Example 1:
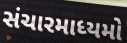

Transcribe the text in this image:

સંચારમાધ્યમો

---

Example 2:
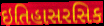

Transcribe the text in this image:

ઇતિહાસરસિક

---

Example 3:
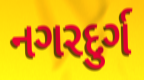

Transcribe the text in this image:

નગરદુર્ગ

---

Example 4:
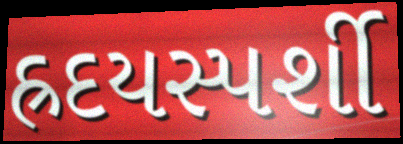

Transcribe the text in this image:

હ્રદયસ્પર્શી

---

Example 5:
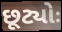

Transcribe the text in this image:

છૂટ્યોઃ